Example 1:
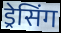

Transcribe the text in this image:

ड्रेसिंग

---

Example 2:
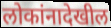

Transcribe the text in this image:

लोकांनादेखील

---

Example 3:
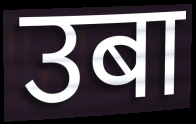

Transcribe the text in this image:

उबा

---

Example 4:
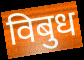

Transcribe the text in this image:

विबुध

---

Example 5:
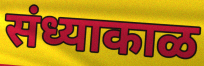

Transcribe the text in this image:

संध्याकाळ